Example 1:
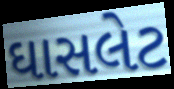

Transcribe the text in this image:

ઘાસલેટ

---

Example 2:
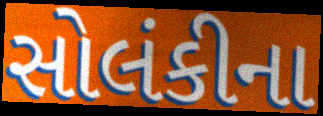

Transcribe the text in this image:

સોલંકીના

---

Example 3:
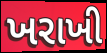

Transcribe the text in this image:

ખરાખી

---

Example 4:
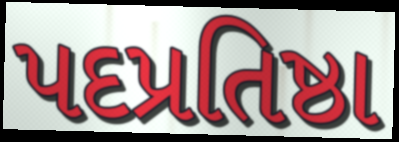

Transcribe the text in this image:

પદપ્રતિષ્ઠા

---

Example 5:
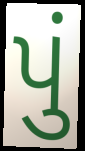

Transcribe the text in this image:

પું